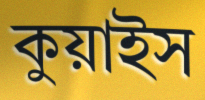
কুয়াইস